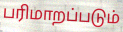
பரிமாறப்படும்